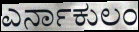
ಎರ್ನಾಕುಲಂ